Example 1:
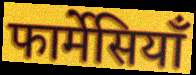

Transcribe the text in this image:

फार्मेसियाँ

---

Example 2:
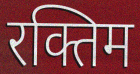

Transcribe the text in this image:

रक्तिम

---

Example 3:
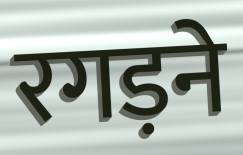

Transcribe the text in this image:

रगड़ने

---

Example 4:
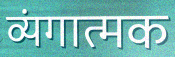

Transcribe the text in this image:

व्यंगात्मक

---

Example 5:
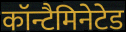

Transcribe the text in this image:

कॉन्टैमिनेटेड